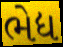
ભેદ્ય